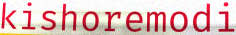
kishoremodi